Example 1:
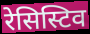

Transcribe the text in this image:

रेसिस्टिव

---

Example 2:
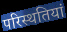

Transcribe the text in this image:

परिस्थतियां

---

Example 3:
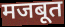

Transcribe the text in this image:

मजबूत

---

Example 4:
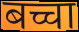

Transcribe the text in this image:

बच्चा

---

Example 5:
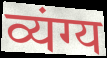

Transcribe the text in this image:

व्‍यंग्‍य